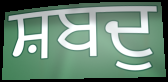
ਸ਼ਬਦੁ